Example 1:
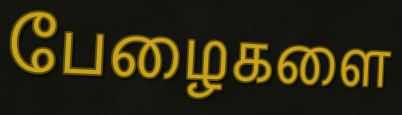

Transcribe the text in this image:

பேழைகளை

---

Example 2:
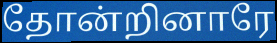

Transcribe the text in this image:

தோன்றினாரே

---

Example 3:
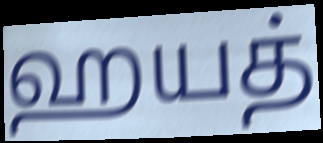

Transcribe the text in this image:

ஹயத்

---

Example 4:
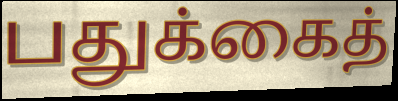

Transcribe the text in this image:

பதுக்கைத்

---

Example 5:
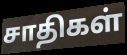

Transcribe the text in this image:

சாதிகள்